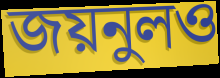
জয়নুলও